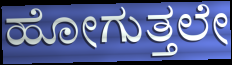
ಹೋಗುತ್ತಲೇ